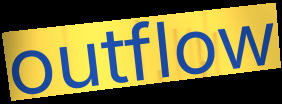
outflow